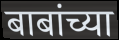
बाबांच्या